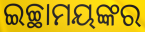
ଇଚ୍ଛାମୟଙ୍କର